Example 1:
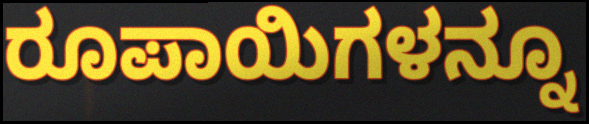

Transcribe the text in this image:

ರೂಪಾಯಿಗಳನ್ನೂ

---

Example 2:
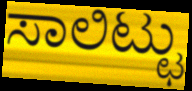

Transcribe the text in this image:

ಸಾಲಿಟ್ಟು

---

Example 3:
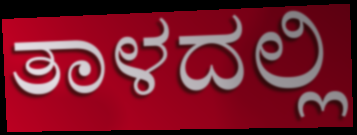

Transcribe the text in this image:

ತಾಳದಲ್ಲಿ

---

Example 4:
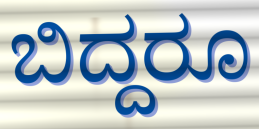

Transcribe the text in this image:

ಬಿದ್ದರೂ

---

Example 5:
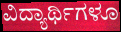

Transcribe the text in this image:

ವಿದ್ಯಾರ್ಥಿಗಳೂ